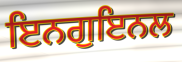
ਇਨਗੁਇਨਲ